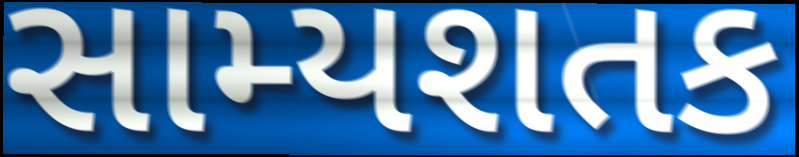
સામ્યશતક